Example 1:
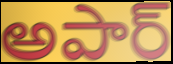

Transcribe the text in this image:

అపార్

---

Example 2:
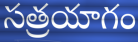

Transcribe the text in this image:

సత్రయాగం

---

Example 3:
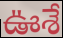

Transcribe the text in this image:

ఊశే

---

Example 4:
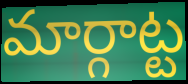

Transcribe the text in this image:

మార్గాట్ట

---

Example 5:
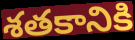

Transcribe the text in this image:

శతకానికి